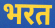
भरत